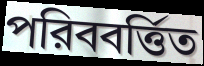
পরিববর্ত্তিত